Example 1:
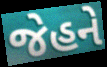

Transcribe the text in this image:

જેહને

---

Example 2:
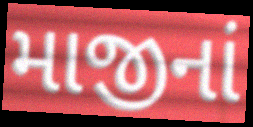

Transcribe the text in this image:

માજીનાં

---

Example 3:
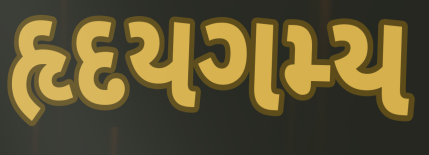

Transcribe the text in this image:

હૃદયગમ્ય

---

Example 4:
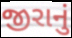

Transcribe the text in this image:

જીરાનું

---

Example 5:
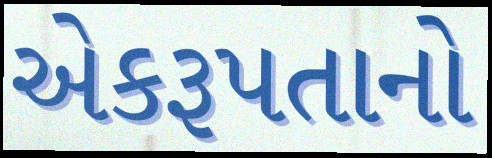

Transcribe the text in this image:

એકરૂપતાનો